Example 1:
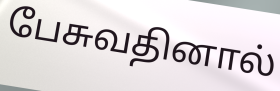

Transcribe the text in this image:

பேசுவதினால்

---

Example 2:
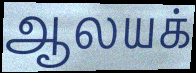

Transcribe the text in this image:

ஆலயக்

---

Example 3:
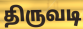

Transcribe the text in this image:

திருவடி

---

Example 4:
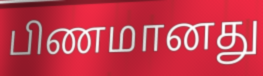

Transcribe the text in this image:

பிணமானது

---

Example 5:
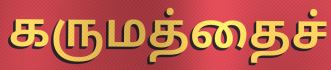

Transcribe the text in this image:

கருமத்தைச்